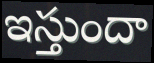
ఇస్తుందా